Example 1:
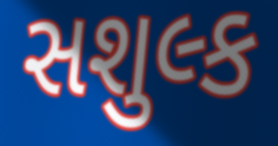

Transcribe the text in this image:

સશુલ્ક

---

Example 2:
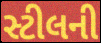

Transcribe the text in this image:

સ્ટીલની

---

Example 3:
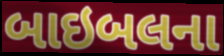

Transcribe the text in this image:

બાઇબલના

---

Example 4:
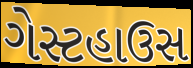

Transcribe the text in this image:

ગેસ્ટહાઉસ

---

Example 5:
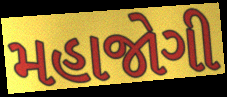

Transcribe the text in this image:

મહાજોગી